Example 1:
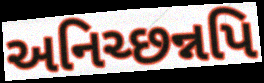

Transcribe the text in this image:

અનિચ્છન્નપિ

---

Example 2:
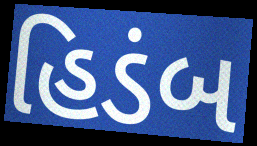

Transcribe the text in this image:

હિડંબ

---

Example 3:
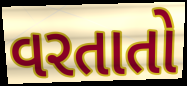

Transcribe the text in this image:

વરતાતો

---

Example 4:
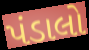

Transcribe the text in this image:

પંડાલો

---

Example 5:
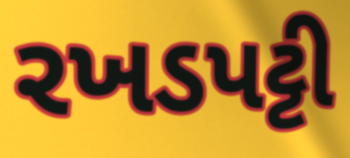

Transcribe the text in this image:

રખડપટ્ટી